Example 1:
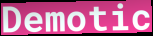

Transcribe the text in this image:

Demotic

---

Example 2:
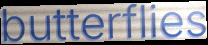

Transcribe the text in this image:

butterflies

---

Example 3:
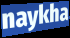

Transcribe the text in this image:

naykha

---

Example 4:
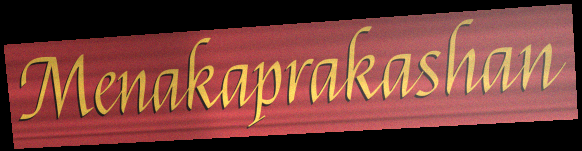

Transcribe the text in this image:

Menakaprakashan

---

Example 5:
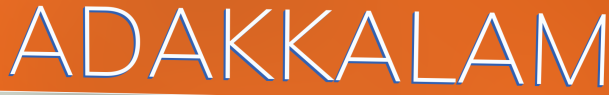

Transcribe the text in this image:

ADAKKALAM